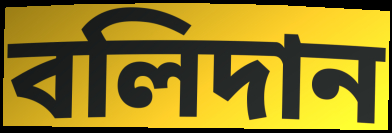
বলিদান